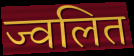
ज्वलित